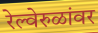
रेल्वेरुळांवर